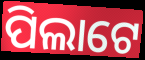
ପିଲାଟେ